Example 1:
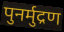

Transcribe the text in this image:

पुनर्मुद्रण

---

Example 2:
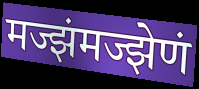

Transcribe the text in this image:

मज्झंमज्झेणं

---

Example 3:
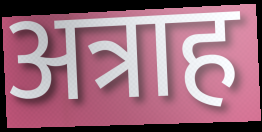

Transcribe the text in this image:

अत्राह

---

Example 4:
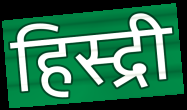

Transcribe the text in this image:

हिस्द्री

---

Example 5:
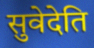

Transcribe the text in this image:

सुवेदेति